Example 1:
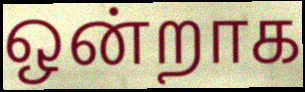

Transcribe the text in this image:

ஒன்றாக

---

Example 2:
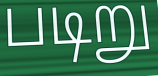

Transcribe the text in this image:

படிறு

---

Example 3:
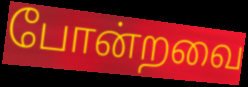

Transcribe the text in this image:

போன்றவை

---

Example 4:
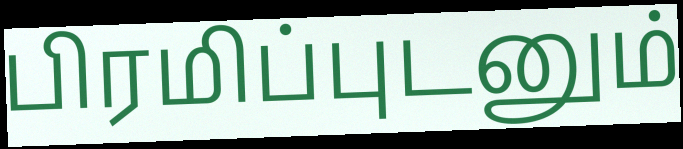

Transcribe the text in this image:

பிரமிப்புடனும்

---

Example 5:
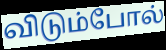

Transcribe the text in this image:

விடும்போல்